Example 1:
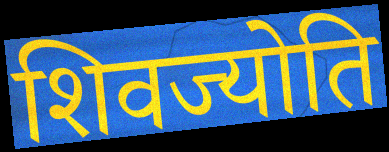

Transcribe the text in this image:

शिवज्योति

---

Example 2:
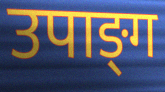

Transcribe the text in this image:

उपाङ्ग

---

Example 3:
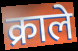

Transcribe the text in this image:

क्राले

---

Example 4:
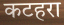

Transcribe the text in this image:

कटहरा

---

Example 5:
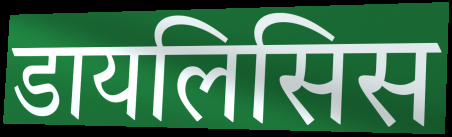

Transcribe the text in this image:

डायलिसिस